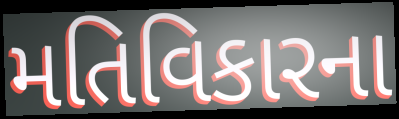
મતિવિકારના